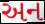
અન